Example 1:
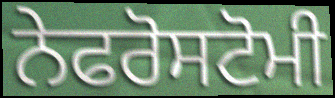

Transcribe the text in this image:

ਨੇਫਰੋਸਟੋਮੀ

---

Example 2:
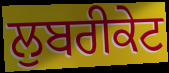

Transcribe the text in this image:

ਲੁਬਰੀਕੇਟ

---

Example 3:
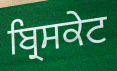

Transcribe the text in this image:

ਬ੍ਰਿਸਕੇਟ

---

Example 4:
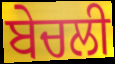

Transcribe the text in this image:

ਬੇਚਲੀ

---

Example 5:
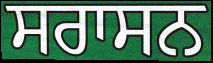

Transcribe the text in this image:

ਸਰਾਸਨ